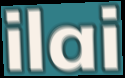
ilai